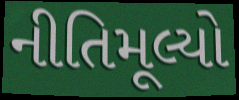
નીતિમૂલ્યો